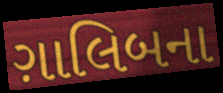
ગ઼ાલિબના